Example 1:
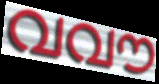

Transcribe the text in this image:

വവൗ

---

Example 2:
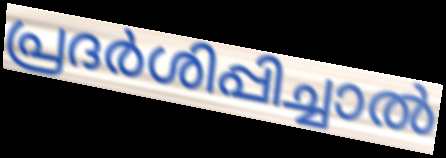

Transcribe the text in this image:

പ്രദർശിപ്പിച്ചാൽ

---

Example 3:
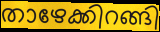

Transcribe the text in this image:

താഴേക്കിറങ്ങി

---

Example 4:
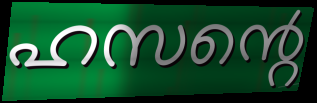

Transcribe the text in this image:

ഹസന്റെ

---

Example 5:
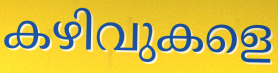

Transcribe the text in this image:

കഴിവുകളെ